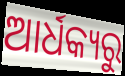
ଆର୍ଧକ୍ୟରୁ